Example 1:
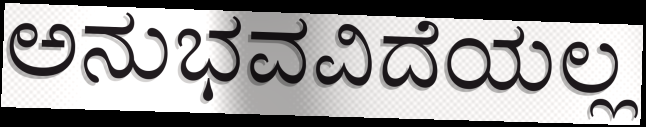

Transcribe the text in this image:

ಅನುಭವವಿದೆಯಲ್ಲ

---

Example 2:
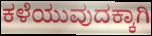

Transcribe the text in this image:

ಕಳೆಯುವುದಕ್ಕಾಗಿ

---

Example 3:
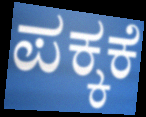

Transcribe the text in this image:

ಪಕ್ಕಕೆ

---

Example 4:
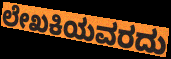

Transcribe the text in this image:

ಲೇಖಕಿಯವರದು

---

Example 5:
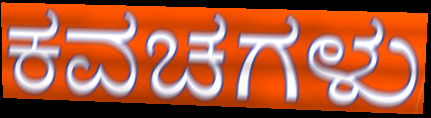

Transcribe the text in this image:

ಕವಚಗಳು